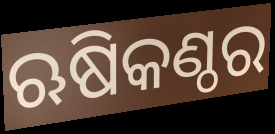
ଋଷିକଣ୍ଠର